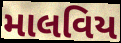
માલવિય